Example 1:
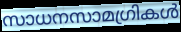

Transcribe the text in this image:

സാധനസാമഗ്രികൾ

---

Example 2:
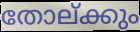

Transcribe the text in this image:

തോല്ക്കും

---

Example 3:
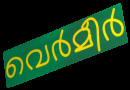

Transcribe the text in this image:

വെർമീർ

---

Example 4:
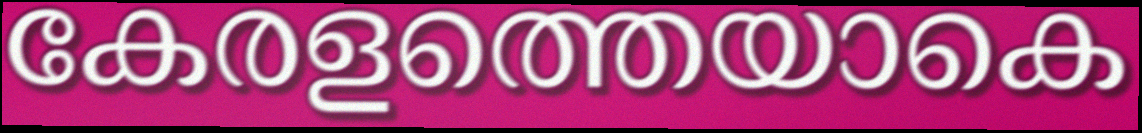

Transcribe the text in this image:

കേരളത്തെയാകെ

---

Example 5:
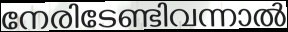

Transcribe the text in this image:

നേരിടേണ്ടിവന്നാൽ